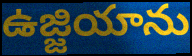
ఉజ్జియాను